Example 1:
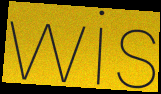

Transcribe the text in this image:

wis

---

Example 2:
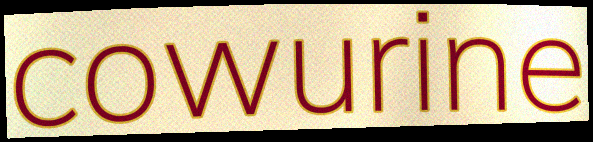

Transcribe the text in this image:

cowurine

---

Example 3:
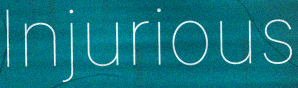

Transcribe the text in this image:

Injurious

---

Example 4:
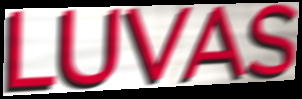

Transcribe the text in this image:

LUVAS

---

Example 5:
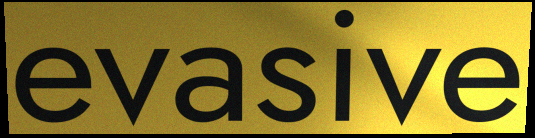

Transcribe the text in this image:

evasive